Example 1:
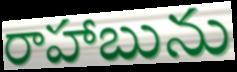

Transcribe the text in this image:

రాహాబును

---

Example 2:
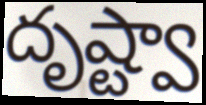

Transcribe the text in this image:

దృష్ట్వా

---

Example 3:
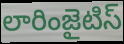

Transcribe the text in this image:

లారింజైటిస్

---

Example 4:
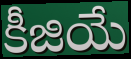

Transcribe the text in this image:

కీజియే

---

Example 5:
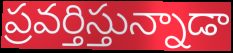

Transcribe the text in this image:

ప్రవర్తిస్తున్నాడా